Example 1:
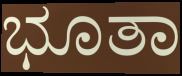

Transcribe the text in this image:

ಭೂತಾ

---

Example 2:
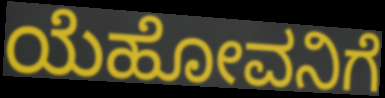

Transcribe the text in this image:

ಯೆಹೋವನಿಗೆ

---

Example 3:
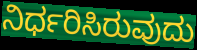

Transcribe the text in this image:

ನಿರ್ಧರಿಸಿರುವುದು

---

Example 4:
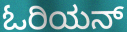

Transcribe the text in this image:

ಓರಿಯನ್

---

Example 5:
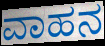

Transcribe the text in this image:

ವಾಹನ